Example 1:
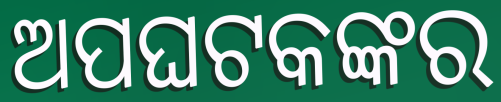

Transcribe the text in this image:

ଅପଘଟକଙ୍କର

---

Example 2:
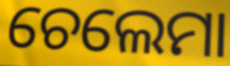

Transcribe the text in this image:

ଚେଲେମା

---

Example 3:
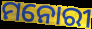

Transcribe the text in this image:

ମନୋରୀ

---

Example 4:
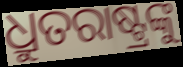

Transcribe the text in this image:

ଧ୍ରୁତରାଷ୍ଟ୍ରଙ୍କୁ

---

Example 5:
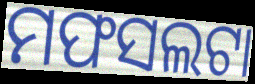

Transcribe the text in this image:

ମଫସଲଟା